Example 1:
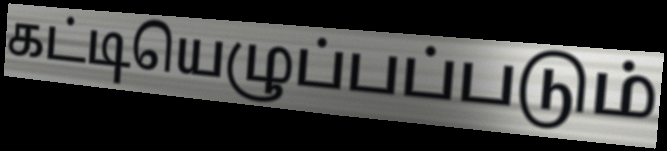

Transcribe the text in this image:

கட்டியெழுப்பப்படும்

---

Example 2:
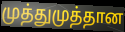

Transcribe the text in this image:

முத்துமுத்தான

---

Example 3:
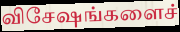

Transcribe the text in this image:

விசேஷங்களைச்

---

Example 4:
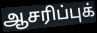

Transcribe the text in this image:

ஆசரிப்புக்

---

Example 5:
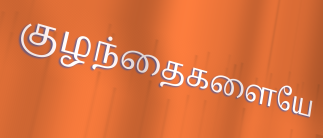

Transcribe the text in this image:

குழந்தைகளையே